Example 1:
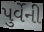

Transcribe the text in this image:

પુર્વેની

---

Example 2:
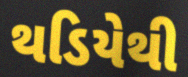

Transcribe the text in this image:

થડિયેથી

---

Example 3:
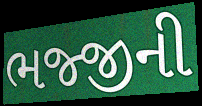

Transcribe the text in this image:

ભજ્જીની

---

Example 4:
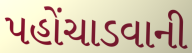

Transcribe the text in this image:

પહોંચાડવાની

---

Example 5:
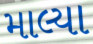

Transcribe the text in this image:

માલ્યા